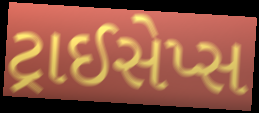
ટ્રાઈસેપ્સ